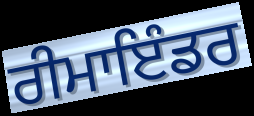
ਰੀਮਾਇੰਡਰ